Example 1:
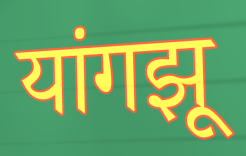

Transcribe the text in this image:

यांगझू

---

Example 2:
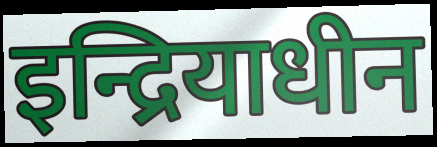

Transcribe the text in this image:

इन्द्रियाधीन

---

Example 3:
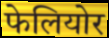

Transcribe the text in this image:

फेलियोर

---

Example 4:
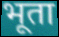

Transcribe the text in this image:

भूता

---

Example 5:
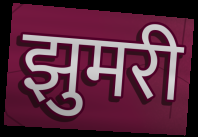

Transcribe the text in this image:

झुमरी